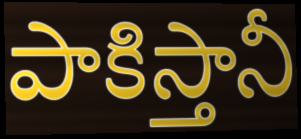
పాకిస్తానీ